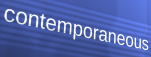
contemporaneous